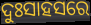
ଦୁଃସାହସରେ